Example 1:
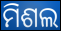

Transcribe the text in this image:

ମିଶଲ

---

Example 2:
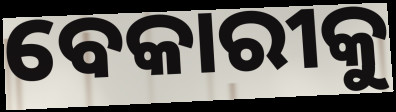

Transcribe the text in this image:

ବେକାରୀକୁ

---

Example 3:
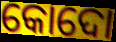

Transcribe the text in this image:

କୋଦୋ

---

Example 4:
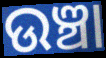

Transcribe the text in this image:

ଉଞ୍ଚା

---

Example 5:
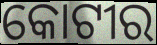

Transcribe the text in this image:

କୋଟୀର